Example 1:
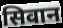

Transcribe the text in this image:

सिवान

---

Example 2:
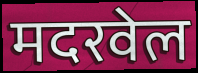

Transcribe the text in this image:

मदरवेल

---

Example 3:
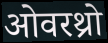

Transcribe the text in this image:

ओवरथ्रो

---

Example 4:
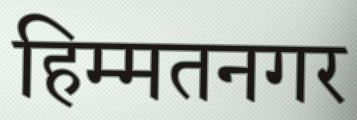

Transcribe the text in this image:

हिम्मतनगर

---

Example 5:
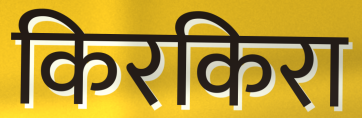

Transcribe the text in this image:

किरकिरा